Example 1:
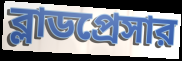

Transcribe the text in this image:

ব্লাডপ্রেসার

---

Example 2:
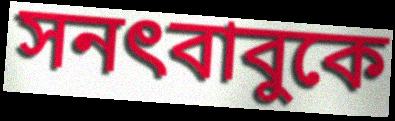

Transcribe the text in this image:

সনৎবাবুকে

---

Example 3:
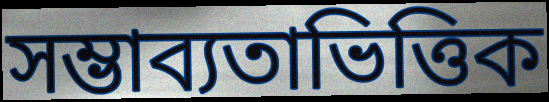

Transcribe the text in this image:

সম্ভাব্যতাভিত্তিক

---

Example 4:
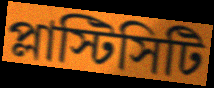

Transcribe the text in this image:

প্লাস্টিসিটি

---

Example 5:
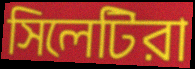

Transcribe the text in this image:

সিলেটিরা